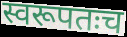
स्वरूपतःच